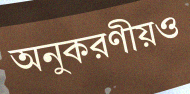
অনুকরণীয়ও